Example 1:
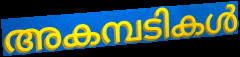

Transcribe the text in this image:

അകമ്പടികൾ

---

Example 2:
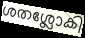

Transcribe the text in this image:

ശതശ്ലോകി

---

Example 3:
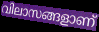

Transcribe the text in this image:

വിലാസങ്ങളാണ്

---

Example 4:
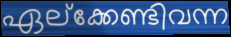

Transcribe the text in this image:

ഏല്ക്കേണ്ടിവന്ന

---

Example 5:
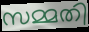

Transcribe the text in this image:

സമ്മതി